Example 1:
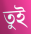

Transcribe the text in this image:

তুই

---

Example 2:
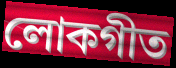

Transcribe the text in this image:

লোকগীত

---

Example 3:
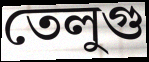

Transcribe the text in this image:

তেলুগু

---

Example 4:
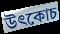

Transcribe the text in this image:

উৎকোচ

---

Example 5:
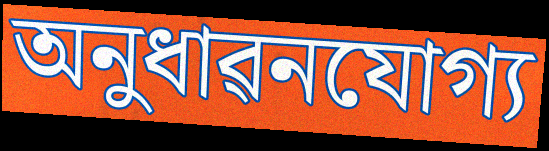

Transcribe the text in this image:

অনুধাৱনযোগ্য